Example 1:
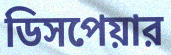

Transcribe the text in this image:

ডিসপেয়ার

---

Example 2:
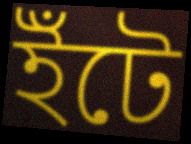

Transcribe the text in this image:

ইঁটে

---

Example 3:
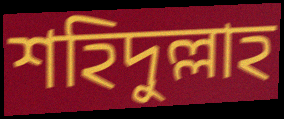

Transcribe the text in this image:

শহিদুল্লাহ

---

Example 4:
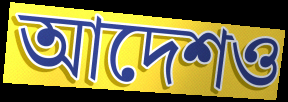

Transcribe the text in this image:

আদেশও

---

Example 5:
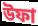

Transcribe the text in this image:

উফা